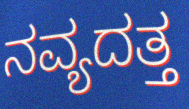
ನವ್ಯದತ್ತ